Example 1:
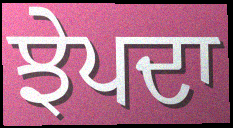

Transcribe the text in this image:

ਝੇਪਦਾ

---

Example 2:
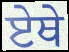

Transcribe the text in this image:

ਏਥੇ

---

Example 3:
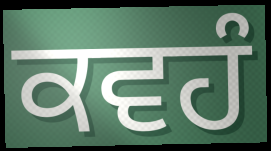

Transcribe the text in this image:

ਕਵਹੰ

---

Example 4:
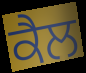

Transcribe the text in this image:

ਕੈਲ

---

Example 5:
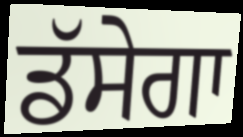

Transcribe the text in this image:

ਡੱਸੇਗਾ